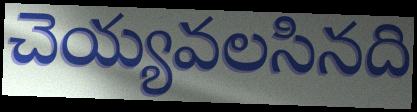
చెయ్యవలసినది